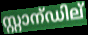
സ്റ്റാന്ഡില്